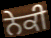
ਨੇਕੀ